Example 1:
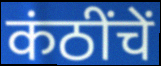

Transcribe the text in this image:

कंठींचें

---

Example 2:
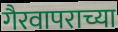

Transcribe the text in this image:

गैरवापराच्या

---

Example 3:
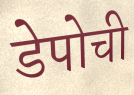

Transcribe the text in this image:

डेपोची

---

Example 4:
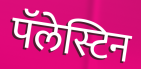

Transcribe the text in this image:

पॅलेस्टिन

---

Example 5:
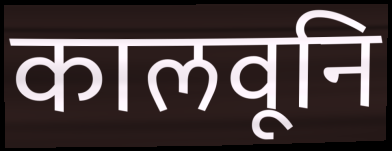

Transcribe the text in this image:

कालवूनि